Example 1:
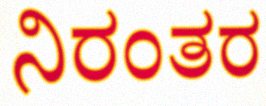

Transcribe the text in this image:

ನಿರಂತರ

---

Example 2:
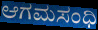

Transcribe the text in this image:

ಆಗಮಸಂಧಿ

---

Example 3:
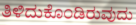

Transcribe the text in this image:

ತಿಳಿದುಕೊಂಡಿರುವುದು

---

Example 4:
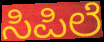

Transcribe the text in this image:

ಸಿಪಿಲೆ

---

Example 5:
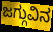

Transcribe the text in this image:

ಜಗ್ಗುವಿನ